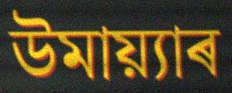
উমায়্যাৰ